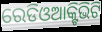
ରେଡିଓଆକ୍ଟିଭିଟି